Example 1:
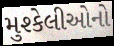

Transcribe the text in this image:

મુશ્કેલીઓનો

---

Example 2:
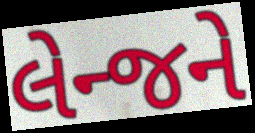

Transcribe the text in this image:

લેન્જને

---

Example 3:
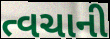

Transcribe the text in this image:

ત્વચાની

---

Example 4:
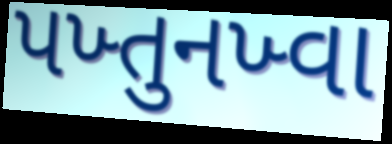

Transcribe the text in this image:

પખ્તુનખ્વા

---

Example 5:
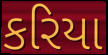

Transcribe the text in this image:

કરિયા